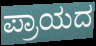
ಪ್ರಾಯದ